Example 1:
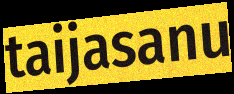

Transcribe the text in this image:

taijasanu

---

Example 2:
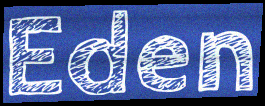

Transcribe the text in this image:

Eden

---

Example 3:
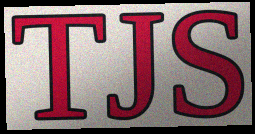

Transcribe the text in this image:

TJS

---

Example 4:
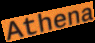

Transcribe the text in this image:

Athena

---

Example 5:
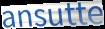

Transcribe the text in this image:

ansutte